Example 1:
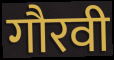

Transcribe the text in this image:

गौरवी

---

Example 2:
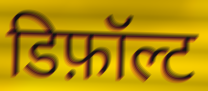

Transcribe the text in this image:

डिफ़ॉल्ट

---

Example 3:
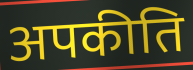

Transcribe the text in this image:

अपकीति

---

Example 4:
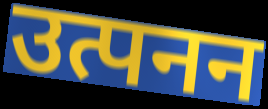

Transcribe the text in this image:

उत्पनन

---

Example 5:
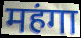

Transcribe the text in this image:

महंगा